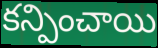
కన్పించాయి